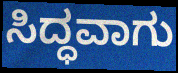
ಸಿದ್ಧವಾಗು